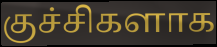
குச்சிகளாக